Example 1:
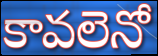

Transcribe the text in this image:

కావలెనో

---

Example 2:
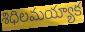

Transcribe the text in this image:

శిధిలమయ్యాక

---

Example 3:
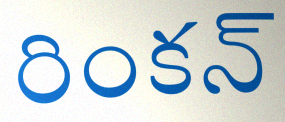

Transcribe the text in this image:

రింకన్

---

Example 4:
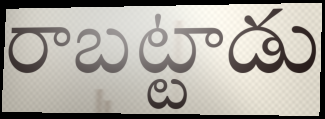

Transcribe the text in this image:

రాబట్టాడు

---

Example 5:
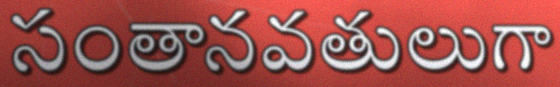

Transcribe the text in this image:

సంతానవతులుగా